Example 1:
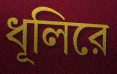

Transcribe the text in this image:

ধূলিরে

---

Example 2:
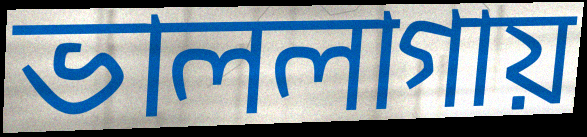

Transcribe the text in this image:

ভাললাগায়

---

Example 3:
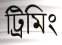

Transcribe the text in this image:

ট্রিমিং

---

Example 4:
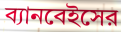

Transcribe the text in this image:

ব্যানবেইসের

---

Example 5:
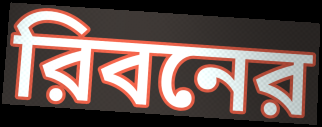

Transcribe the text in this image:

রিবনের